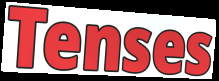
Tenses